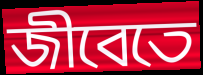
জীবেতে